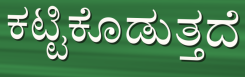
ಕಟ್ಟಿಕೊಡುತ್ತದೆ